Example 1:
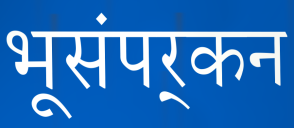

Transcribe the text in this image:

भूसंपर्कन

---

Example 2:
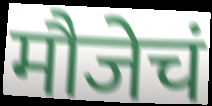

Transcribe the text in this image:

मौजेचं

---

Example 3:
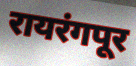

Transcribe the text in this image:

रायरंगपूर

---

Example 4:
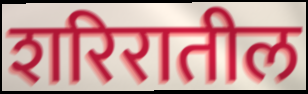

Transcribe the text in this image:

शरिरातील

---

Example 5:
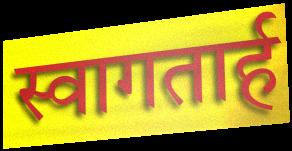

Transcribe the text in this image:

स्वागतार्ह